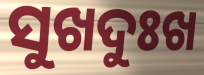
ସୁଖଦୁଃଖ